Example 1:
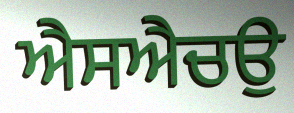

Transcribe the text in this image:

ਐਸਐਚਉ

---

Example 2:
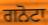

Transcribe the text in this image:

ਗਨੋਟਾ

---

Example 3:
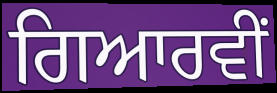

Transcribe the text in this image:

ਗਿਆਰਵੀਂ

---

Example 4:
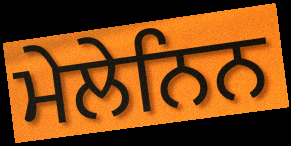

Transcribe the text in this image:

ਮੇਲੇਨਿਨ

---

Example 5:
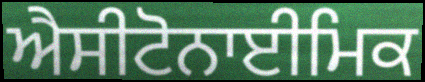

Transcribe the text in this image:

ਐਸੀਟੋਨਾਈਮਿਕ